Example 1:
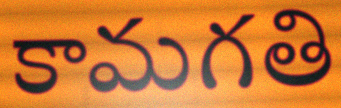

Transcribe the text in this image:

కామగతి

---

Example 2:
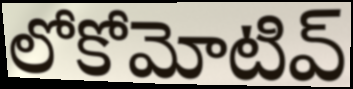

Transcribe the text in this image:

లోకోమోటివ్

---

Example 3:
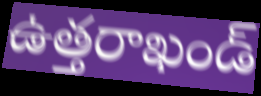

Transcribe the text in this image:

ఉత్తరాఖండ్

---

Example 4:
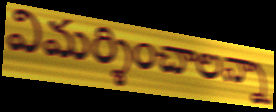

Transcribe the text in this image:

విమర్శించాలన్నా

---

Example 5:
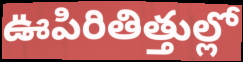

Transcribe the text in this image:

ఊపిరితిత్తుల్లో